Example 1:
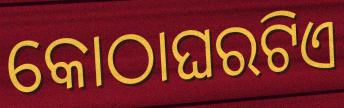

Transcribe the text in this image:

କୋଠାଘରଟିଏ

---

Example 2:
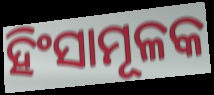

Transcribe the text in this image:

ହିଂସାମୂଳକ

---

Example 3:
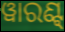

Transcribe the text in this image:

ୱାରଣ୍ଟ୍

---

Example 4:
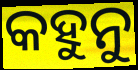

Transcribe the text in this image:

କହୁନୁ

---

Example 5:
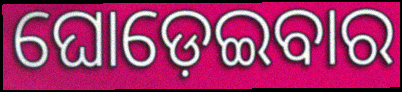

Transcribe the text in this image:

ଘୋଡ଼େଇବାର